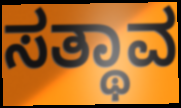
ಸತ್ಥಾವ